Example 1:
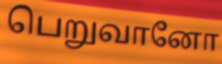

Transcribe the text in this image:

பெறுவானோ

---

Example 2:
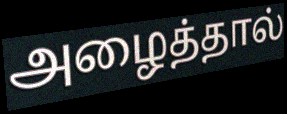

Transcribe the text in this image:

அழைத்தால்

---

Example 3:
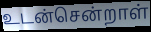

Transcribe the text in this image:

உடன்சென்றாள்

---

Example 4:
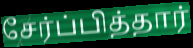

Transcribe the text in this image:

சேர்ப்பித்தார்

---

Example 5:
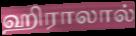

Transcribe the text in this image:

ஹிராலால்